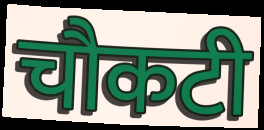
चौकटी